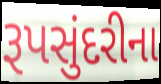
રૂપસુંદરીના